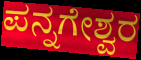
ಪನ್ನಗೇಶ್ವರ